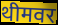
थीमवर